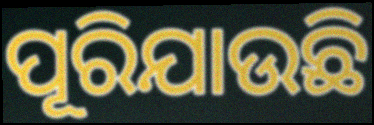
ପୂରିଯାଉଛି